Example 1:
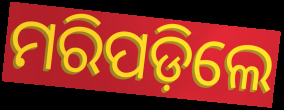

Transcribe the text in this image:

ମରିପଡ଼ିଲେ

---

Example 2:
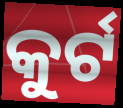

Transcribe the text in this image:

କୁର୍ଟ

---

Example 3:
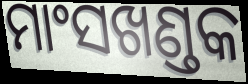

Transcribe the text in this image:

ମାଂସଖଣ୍ଡକ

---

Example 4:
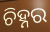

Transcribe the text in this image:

ଚିହ୍ନର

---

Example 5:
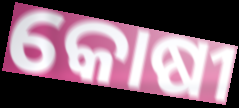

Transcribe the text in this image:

କୋଷୀ